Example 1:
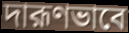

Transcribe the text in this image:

দারূণভাবে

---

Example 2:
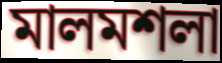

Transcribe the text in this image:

মালমশলা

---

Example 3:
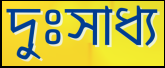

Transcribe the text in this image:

দুঃসাধ্য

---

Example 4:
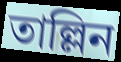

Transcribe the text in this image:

তাল্লিন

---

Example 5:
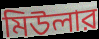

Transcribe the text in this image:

মিউলার